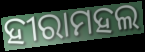
ହୀରାମହଲ